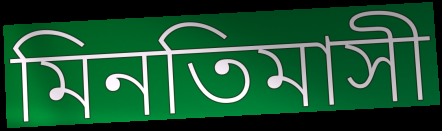
মিনতিমাসী